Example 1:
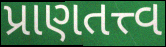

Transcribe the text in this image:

પ્રાણતત્ત્વ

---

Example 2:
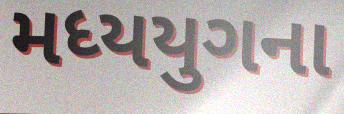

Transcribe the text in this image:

મધ્યયુગના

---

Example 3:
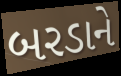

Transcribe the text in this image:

બરડાને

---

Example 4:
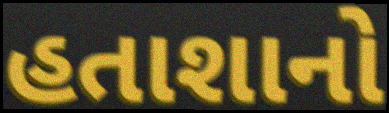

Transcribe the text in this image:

હતાશાનો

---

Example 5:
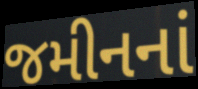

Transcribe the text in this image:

જમીનનાં